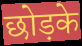
छोड़के